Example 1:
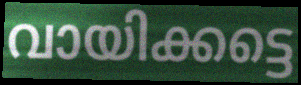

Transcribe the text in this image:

വായിക്കട്ടെ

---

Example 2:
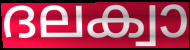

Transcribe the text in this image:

ദലക്വാ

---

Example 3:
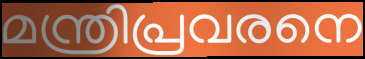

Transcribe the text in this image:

മന്ത്രിപ്രവരനെ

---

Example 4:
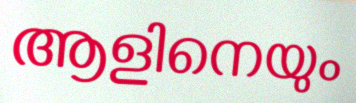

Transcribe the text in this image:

ആളിനെയും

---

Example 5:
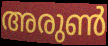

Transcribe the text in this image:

അരുൺ